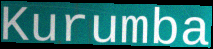
Kurumba